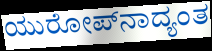
ಯುರೋಪ್‌ನಾದ್ಯಂತ